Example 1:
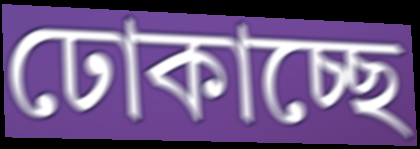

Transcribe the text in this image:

ঢোকাচ্ছে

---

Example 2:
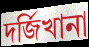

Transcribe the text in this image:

দর্জিখানা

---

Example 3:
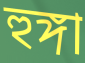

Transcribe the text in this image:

হুঙ্গা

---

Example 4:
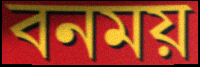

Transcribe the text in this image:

বনময়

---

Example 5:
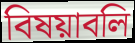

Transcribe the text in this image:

বিষয়াবলি